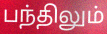
பந்திலும்